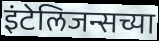
इंटेलिजन्सच्या